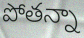
పోతన్నా